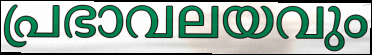
പ്രഭാവലയവും